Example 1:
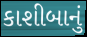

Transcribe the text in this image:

કાશીબાનું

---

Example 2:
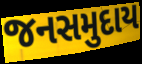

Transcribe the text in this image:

જનસમુદાય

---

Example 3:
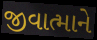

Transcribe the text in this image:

જીવાત્માને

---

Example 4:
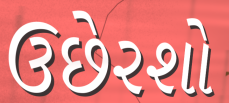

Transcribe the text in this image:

ઉછેરશો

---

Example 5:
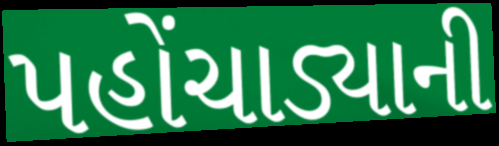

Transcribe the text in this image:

પહોંચાડ્યાની